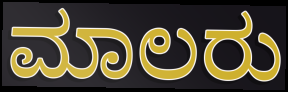
ಮಾಲರು